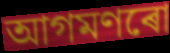
আগমণৰো